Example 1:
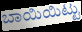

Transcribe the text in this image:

ಬಾಯಿಯಿಟ್ಟು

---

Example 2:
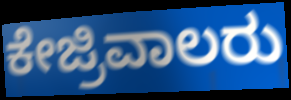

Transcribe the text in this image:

ಕೇಜ್ರಿವಾಲರು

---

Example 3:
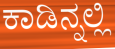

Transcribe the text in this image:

ಕಾಡಿನ್ನಲ್ಲಿ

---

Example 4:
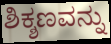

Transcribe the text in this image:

ಶಿಕ್ಶಣವನ್ನು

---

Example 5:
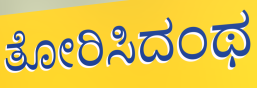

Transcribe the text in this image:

ತೋರಿಸಿದಂಥ